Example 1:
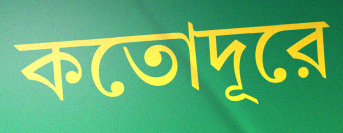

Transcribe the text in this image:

কতোদূরে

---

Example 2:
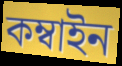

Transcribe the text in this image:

কম্বাইন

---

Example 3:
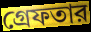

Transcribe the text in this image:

গ্রেফতার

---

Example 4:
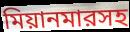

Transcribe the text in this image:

মিয়ানমারসহ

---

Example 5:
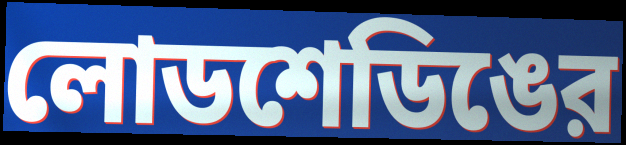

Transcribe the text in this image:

লোডশেডিঙের